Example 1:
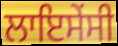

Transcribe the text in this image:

ਲਾਇਸੇਂਸੀ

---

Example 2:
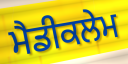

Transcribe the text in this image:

ਮੈਡੀਕਲੇਮ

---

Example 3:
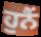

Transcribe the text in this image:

ਹੁਨੈਂ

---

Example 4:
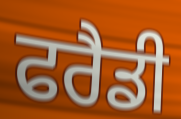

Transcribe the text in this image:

ਫਰੈਡੀ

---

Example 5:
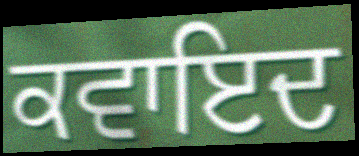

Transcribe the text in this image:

ਕਵਾਇਦ